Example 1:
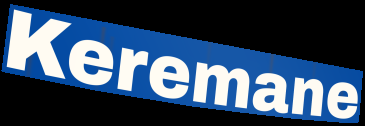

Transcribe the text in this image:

Keremane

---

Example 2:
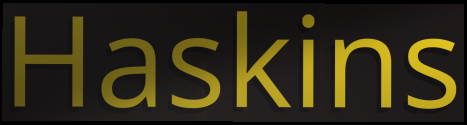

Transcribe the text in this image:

Haskins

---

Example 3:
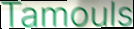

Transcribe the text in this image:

Tamouls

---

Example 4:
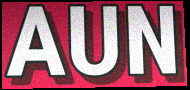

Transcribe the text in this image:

AUN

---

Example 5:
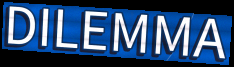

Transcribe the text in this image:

DILEMMA